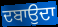
ਦਬਾਉਦਾ